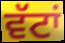
ਵੱਟਾਂ